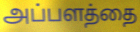
அப்பளத்தை